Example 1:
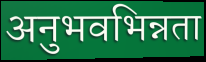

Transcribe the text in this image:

अनुभवभिन्नता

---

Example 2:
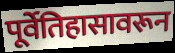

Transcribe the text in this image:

पूर्वेतिहासावरून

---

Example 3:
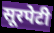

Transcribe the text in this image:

सूरपेटी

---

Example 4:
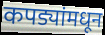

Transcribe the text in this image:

कपड्यांमधून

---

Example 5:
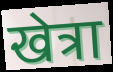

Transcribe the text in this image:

खेत्रा